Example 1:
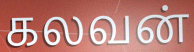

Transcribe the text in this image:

கலவன்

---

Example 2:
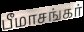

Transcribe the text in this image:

பீமாசங்கர்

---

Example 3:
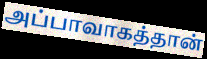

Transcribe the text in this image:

அப்பாவாகத்தான்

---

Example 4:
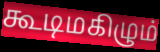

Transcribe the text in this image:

கூடிமகிழும்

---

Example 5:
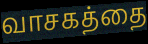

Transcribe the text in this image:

வாசகத்தை